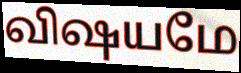
விஷயமே